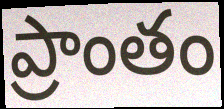
ప్రాంతం